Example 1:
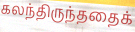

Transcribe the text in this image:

கலந்திருந்ததைக்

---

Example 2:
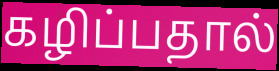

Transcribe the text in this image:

கழிப்பதால்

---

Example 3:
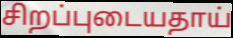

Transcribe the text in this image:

சிறப்புடையதாய்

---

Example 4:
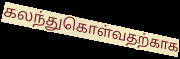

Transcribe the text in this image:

கலந்துகொள்வதற்காக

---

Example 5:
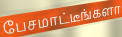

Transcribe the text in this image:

பேசமாட்டீங்களா